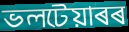
ভলটেয়াৰৰ